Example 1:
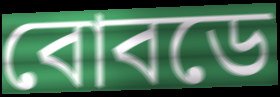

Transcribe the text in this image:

বোবডে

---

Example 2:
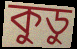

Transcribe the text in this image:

কুডু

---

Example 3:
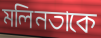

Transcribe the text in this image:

মলিনতাকে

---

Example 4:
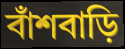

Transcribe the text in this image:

বাঁশবাড়ি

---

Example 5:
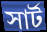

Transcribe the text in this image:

সার্ট